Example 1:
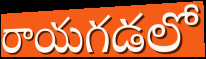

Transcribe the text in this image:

రాయగడలో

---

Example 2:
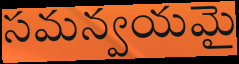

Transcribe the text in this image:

సమన్వయమై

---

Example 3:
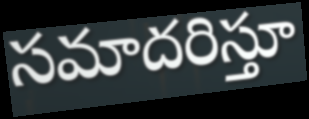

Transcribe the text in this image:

సమాదరిస్తూ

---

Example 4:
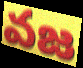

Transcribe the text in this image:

వజ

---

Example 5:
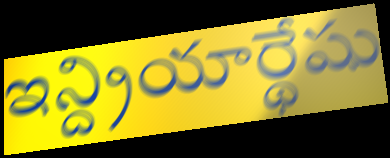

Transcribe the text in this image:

ఇన్ద్రియార్థేషు